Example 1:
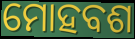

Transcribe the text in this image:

ମୋହବଶ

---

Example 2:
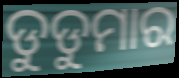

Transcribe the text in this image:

ଡୁଡୁମାର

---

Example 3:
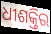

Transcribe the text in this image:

ଧୀଶକ୍ତିର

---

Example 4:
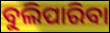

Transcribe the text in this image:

ବୁଲିପାରିବା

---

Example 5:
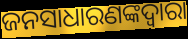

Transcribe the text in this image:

ଜନସାଧାରଣଙ୍କଦ୍ବାରା